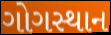
ગોગસ્થાન